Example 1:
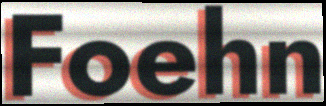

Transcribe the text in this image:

Foehn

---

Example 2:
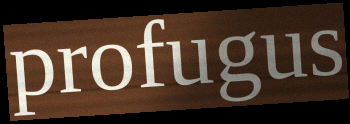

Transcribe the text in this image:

profugus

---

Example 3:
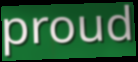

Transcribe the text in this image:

proud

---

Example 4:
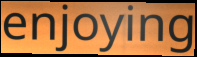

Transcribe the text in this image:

enjoying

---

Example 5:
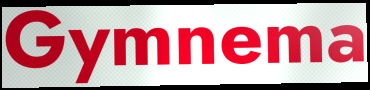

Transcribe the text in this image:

Gymnema